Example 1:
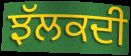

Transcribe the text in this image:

ਝੱਲਕਦੀ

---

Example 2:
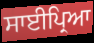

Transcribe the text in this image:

ਸਾਈਪ੍ਰਿਆ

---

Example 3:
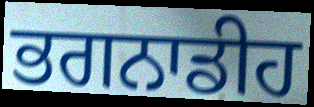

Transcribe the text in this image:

ਭਗਨਾਡੀਹ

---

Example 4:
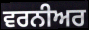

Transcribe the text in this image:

ਵਰਨੀਅਰ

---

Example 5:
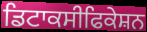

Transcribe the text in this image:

ਡਿਟਾਕਸੀਫਿਕੇਸ਼ਨ